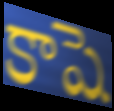
కాషె